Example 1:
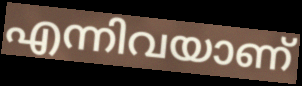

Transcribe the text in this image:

എന്നിവയാണ്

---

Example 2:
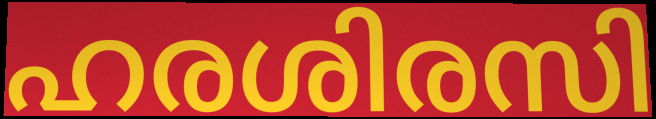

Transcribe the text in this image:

ഹരശിരസി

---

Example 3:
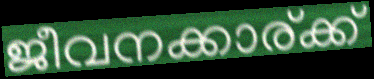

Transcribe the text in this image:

ജീവനക്കാര്ക്ക്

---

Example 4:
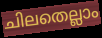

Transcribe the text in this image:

ചിലതെല്ലാം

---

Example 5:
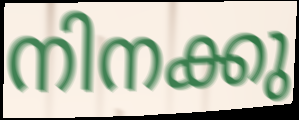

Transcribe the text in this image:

നിനക്കു